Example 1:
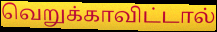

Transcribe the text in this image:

வெறுக்காவிட்டால்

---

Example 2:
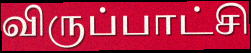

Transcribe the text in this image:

விருப்பாட்சி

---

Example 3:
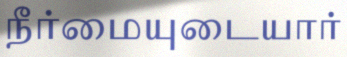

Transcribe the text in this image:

நீர்மையுடையார்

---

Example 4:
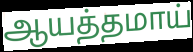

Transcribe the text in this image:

ஆயத்தமாய்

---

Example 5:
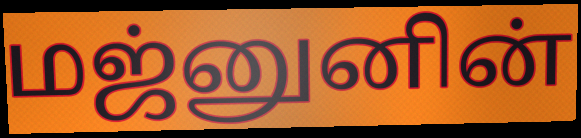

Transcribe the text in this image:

மஜ்னுனின்